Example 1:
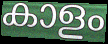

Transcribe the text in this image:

കാളം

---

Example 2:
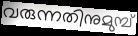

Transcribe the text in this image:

വരുന്നതിനുമുമ്പ്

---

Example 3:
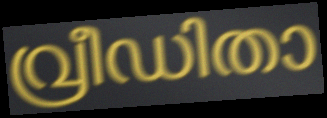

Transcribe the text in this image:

വ്രീഡിതാ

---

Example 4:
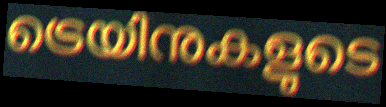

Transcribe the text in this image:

ട്രെയിനുകളുടെ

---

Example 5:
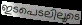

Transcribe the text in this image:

ഇടപെടലിലൂടെ